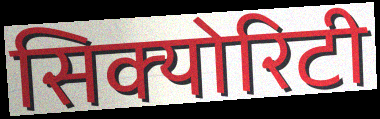
सिक्‍योरिटी